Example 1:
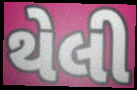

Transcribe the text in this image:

થેલી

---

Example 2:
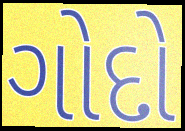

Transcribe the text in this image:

ગોદો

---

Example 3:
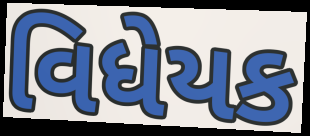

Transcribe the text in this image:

વિધેયક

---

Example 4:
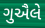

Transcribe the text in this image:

ગુઐલે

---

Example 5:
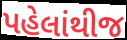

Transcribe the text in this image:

પહેલાંથીજ